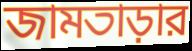
জামতাড়ার